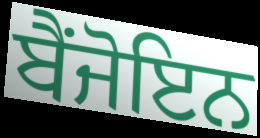
ਬੈਂਜੋਇਨ